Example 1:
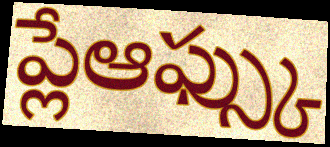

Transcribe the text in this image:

ప్లేఆఫ్స్కు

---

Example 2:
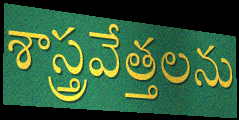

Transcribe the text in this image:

శాస్త్రవేత్తలను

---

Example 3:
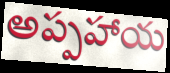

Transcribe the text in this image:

అప్పహాయ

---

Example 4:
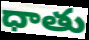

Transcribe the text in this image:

ధాతు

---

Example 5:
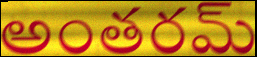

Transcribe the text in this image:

అంతరమ్